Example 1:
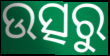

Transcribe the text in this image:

ଉତ୍ସରୁ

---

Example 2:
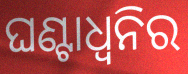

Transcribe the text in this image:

ଘଣ୍ଟାଧ୍ୱନିର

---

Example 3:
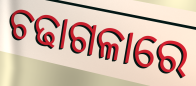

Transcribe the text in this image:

ଚଢାଗଳାରେ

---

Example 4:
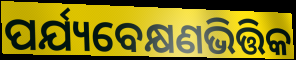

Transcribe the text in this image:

ପର୍ଯ୍ୟବେକ୍ଷଣଭିତ୍ତିକ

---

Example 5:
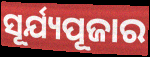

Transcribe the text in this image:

ସୂର୍ଯ୍ୟପୂଜାର